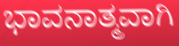
ಭಾವನಾತ್ಮವಾಗಿ